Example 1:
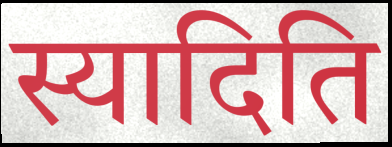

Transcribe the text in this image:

स्यादिति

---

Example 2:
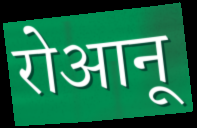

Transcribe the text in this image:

रोआनू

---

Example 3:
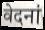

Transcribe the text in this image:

वेदनां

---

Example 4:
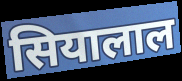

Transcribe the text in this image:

सियालाल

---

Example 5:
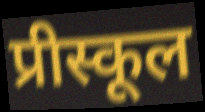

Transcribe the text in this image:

प्रीस्कूल